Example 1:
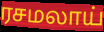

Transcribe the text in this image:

ரசமலாய்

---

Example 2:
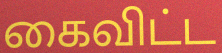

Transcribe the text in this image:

கைவிட்ட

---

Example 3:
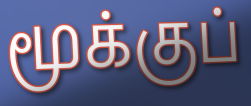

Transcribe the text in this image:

மூக்குப்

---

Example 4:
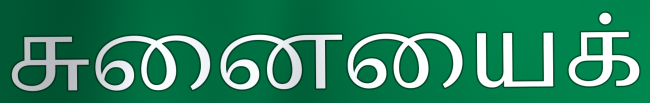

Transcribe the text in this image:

சுனையைக்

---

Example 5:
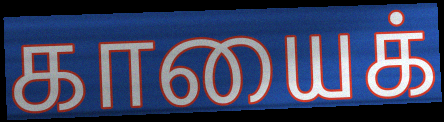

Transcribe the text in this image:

காயைக்